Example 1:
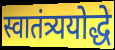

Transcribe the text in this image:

स्वातंत्र्ययोद्धे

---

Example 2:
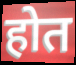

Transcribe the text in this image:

होत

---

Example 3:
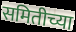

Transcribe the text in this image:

समितीच्‍या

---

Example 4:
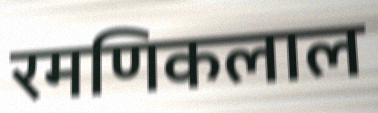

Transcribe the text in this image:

रमणिकलाल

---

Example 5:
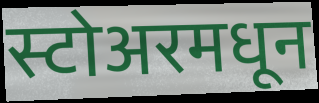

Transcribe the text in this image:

स्टोअरमधून